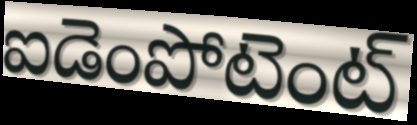
ఐడెంపోటెంట్